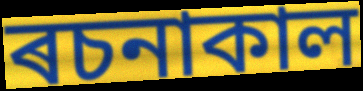
ৰচনাকাল